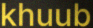
khuub